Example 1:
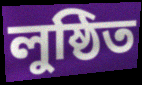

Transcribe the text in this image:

লুষ্ঠিত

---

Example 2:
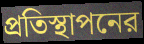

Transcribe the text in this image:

প্রতিস্থাপনের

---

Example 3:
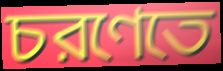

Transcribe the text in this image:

চরণেতে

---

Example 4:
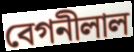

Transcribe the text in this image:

বেগনীলাল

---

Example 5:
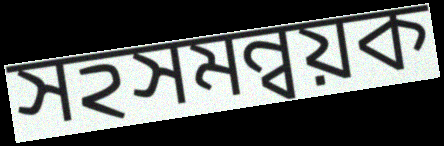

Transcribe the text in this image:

সহসমন্বয়ক